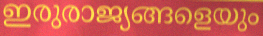
ഇരുരാജ്യങ്ങളെയും